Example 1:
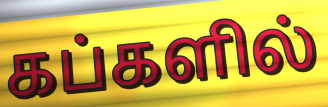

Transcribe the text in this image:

கப்களில்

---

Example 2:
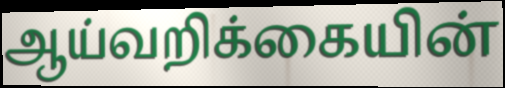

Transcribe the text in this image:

ஆய்வறிக்கையின்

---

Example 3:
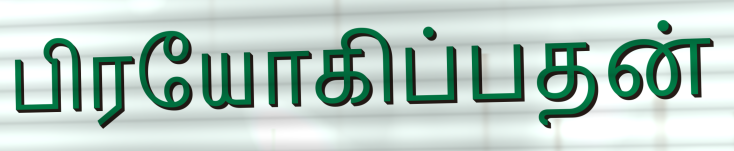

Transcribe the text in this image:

பிரயோகிப்பதன்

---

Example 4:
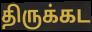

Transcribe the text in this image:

திருக்கட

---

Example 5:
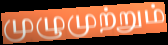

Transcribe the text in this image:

முழுமுற்றும்